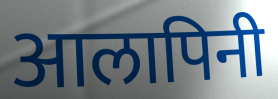
आलापिनी